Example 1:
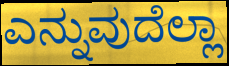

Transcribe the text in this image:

ಎನ್ನುವುದೆಲ್ಲಾ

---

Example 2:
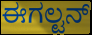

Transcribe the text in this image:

ಈಗಲ್ಟನ್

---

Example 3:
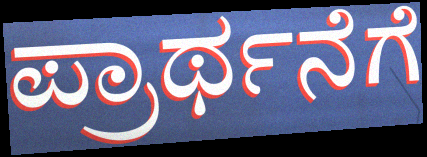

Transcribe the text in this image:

ಪ್ರಾರ್ಥನೆಗೆ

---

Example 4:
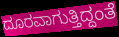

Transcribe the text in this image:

ದೂರವಾಗುತ್ತಿದ್ದಂತೆ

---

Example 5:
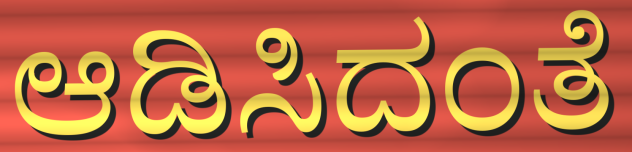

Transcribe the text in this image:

ಆಡಿಸಿದಂತೆ